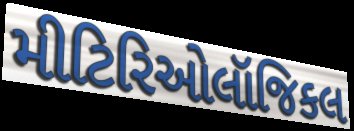
મીટિરિઓલૉજિકલ